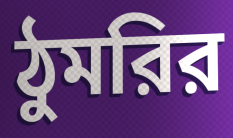
ঠুমরির